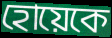
হোয়েকে